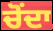
ਚੋਂਦਾ